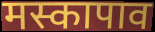
मस्कापाव